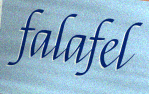
falafel